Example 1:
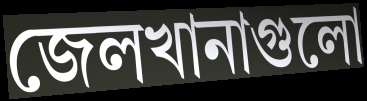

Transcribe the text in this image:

জেলখানাগুলো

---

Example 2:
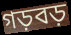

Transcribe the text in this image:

গড়বড়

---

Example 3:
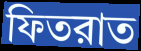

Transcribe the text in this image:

ফিতরাত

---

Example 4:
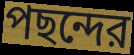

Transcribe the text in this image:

পছন্দের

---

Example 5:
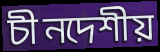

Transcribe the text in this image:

চীনদেশীয়